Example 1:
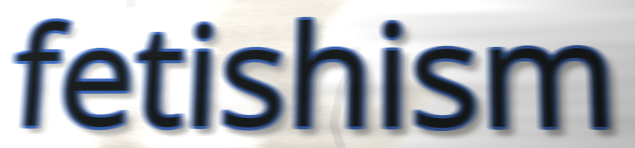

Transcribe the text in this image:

fetishism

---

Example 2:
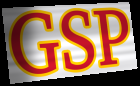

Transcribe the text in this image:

GSP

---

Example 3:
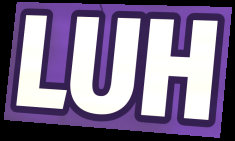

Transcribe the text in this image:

LUH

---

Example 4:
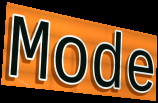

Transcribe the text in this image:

Mode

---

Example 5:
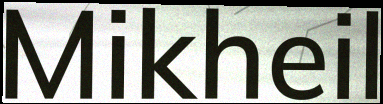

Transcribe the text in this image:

Mikheil